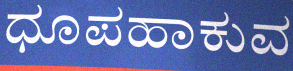
ಧೂಪಹಾಕುವ